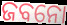
ଜବନୋ